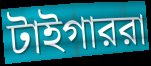
টাইগাররা